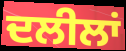
ਦਲੀਲਾਂ